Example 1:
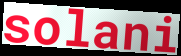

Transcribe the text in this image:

solani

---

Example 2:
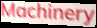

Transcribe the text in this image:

Machinery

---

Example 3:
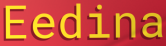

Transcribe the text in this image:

Eedina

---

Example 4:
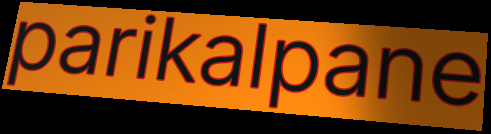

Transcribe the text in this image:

parikalpane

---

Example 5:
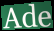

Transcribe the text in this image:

Ade